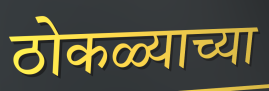
ठोकळ्याच्या